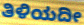
ತಿಳಿಯದೀ